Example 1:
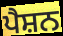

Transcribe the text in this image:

ਪੈਸ਼ਨ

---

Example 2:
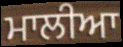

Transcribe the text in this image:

ਮਾਲੀਆ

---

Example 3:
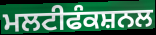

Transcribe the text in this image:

ਮਲਟੀਫੰਕਸ਼ਨਲ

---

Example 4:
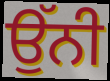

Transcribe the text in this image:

ਉੱਨੀ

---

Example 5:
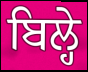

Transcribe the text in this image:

ਬਿਲ੍ਹੇ